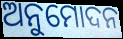
ଅନୁମୋଦନ